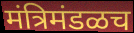
मंत्रिमंडळच